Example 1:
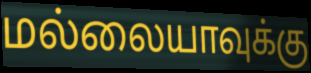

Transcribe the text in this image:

மல்லையாவுக்கு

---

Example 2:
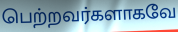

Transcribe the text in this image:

பெற்றவர்களாகவே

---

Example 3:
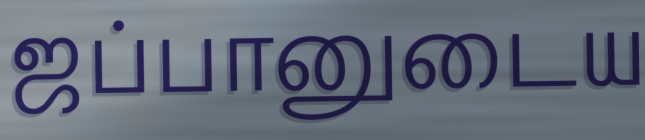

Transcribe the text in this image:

ஜப்பானுடைய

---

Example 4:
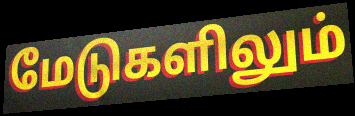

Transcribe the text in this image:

மேடுகளிலும்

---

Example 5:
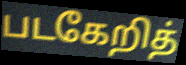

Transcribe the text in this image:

படகேறித்